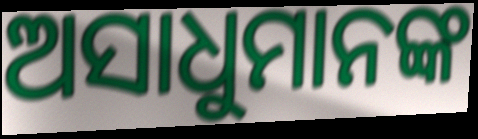
ଅସାଧୁମାନଙ୍କ